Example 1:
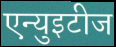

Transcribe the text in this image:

एन्युइटीज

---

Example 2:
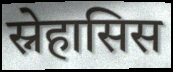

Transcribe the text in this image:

स्नेहासिस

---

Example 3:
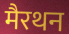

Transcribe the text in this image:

मैरथन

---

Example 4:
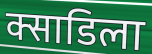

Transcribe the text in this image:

क्साडिला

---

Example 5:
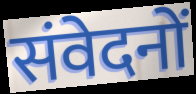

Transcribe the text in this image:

संवेदनों